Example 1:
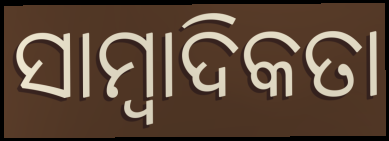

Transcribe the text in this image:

ସାମ୍ୱାଦିକତା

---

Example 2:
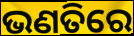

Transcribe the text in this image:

ଭଣତିରେ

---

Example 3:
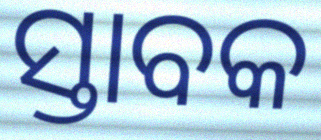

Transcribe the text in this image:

ସ୍ତାବକ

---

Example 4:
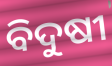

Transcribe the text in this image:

ବିଦୁଷୀ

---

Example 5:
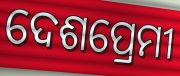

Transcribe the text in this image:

ଦେଶପ୍ରେମୀ